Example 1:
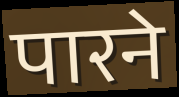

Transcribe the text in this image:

पारने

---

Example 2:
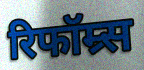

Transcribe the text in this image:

रिफॉम्र्स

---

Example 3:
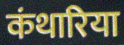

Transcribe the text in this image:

कंथारिया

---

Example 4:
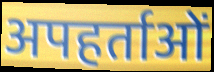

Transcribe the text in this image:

अपहर्ताओं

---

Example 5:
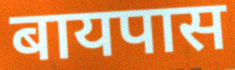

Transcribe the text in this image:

बायपास